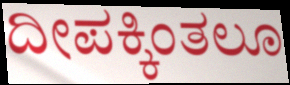
ದೀಪಕ್ಕಿಂತಲೂ